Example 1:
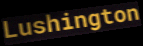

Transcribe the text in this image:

Lushington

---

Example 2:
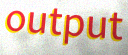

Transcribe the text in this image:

output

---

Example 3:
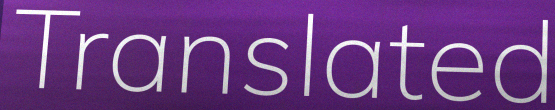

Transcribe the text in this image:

Translated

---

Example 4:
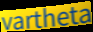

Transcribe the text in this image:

vartheta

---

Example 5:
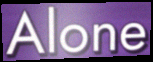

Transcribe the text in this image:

Alone